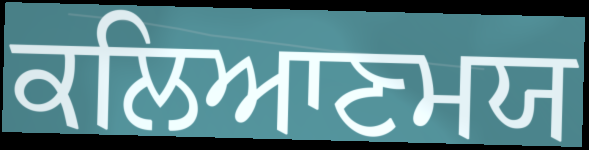
ਕਲਿਆਣਮਯ